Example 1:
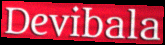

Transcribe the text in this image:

Devibala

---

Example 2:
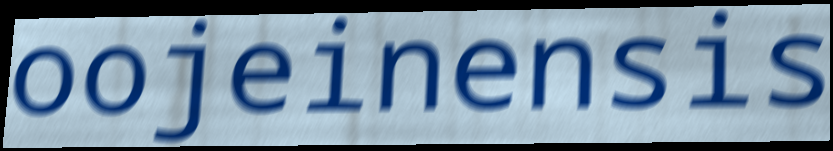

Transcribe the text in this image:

oojeinensis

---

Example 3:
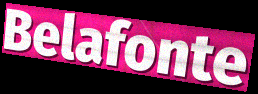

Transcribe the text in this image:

Belafonte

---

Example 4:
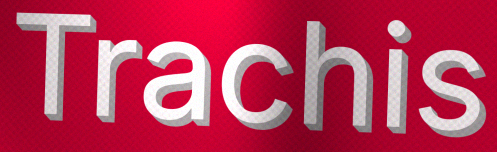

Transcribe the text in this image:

Trachis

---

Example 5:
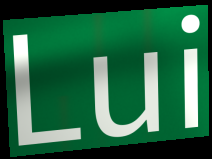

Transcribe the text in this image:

Lui